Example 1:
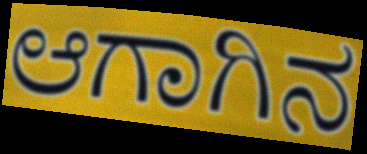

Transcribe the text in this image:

ಆಗಾಗಿನ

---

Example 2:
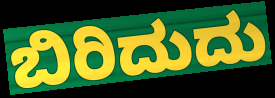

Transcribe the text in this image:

ಬಿರಿದುದು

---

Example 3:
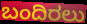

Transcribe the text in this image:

ಬಂದಿರಲು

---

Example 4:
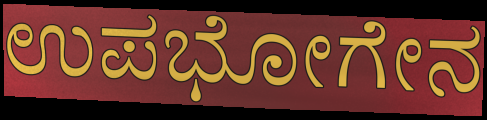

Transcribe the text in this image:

ಉಪಭೋಗೇನ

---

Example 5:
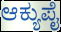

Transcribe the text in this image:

ಆಕ್ಯುಪೈ